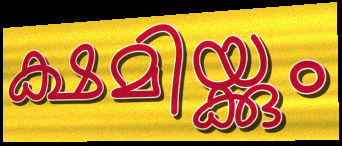
ക്ഷമിയ്ക്കും